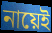
নায়েই